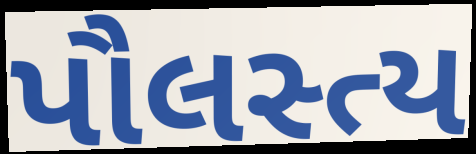
પૌલસ્ત્ય